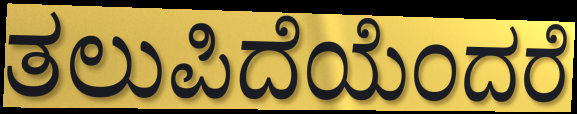
ತಲುಪಿದೆಯೆಂದರೆ